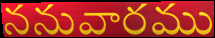
ననువారము